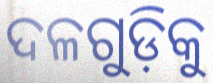
ଦଳଗୁଡ଼ିକୁ